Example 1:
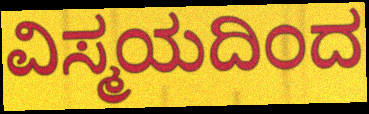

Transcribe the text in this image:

ವಿಸ್ಮಯದಿಂದ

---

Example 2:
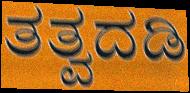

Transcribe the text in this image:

ತತ್ವದಡಿ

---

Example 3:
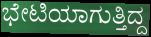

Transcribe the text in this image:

ಭೇಟಿಯಾಗುತ್ತಿದ್ದ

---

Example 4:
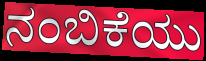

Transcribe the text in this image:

ನಂಬಿಕೆಯು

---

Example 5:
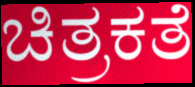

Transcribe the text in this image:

ಚಿತ್ರಕತೆ